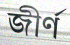
জীৰ্ণ